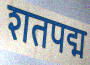
शतपद्म